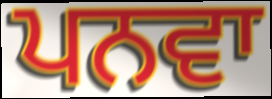
ਪਨਵਾ